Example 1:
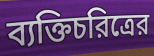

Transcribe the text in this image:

ব্যক্তিচরিত্রের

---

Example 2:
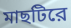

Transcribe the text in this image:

মাছটিরে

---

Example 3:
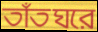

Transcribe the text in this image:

তাঁতঘরে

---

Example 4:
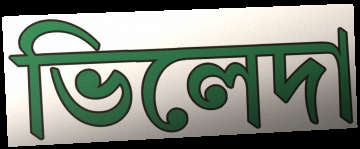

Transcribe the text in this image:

ভিলেদা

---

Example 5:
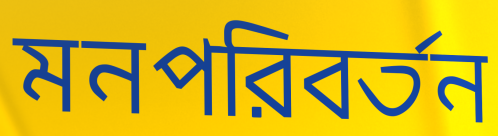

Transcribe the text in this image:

মনপরিবর্তন